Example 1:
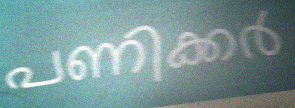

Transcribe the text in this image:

പണിക്കർ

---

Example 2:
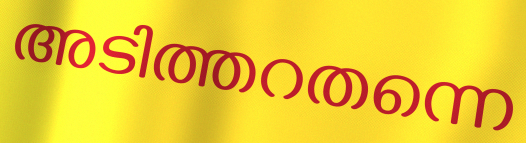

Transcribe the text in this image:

അടിത്തറതന്നെ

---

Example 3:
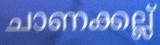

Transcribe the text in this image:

ചാണക്കല്ല്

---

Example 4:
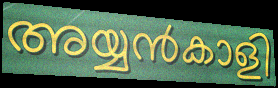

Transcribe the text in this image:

അയ്യൻകാളി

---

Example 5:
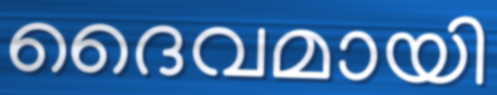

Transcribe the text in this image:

ദൈവമായി